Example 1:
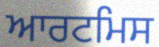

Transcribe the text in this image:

ਆਰਟਮਿਸ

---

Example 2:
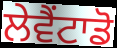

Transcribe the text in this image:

ਲੇਵੈਂਟਾਡੋ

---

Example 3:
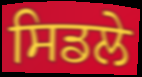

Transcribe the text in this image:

ਸਿਡਲੇ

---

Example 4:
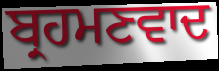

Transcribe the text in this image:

ਬ੍ਰਹਮਣਵਾਦ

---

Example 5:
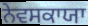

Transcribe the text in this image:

ਨੇਵਸਕਾਯਾ